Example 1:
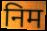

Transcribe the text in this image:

निम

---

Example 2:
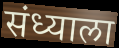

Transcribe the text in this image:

संध्याला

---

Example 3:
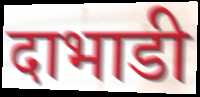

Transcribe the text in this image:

दाभाडी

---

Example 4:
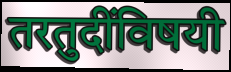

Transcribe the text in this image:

तरतुदींविषयी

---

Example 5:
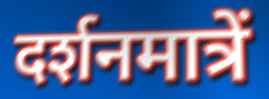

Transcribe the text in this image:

दर्शनमात्रें